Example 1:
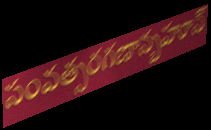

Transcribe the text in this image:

సంవత్సరగణాన్బహూన్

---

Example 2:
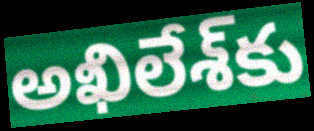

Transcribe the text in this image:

అఖిలేశ్‌కు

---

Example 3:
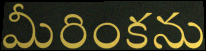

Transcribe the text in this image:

మీరింకను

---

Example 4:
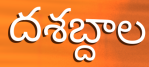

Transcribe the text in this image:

దశబ్దాల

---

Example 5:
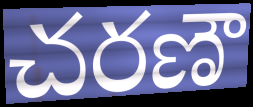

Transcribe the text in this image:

చరణౌ